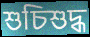
শুচিশুদ্ধ